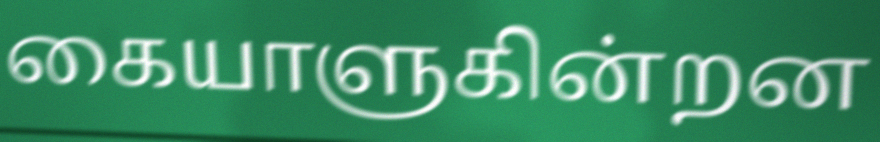
கையாளுகின்றன